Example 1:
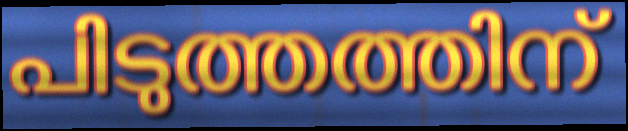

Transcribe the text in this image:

പിടുത്തത്തിന്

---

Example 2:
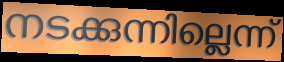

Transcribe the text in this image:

നടക്കുന്നില്ലെന്ന്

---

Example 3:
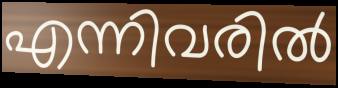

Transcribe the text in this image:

എന്നിവരിൽ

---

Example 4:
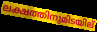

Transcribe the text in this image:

ലക്ഷത്തിനുമിടയില്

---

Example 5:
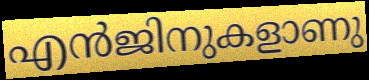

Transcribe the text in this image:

എൻജിനുകളാണു